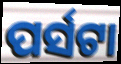
ପର୍ସଟା